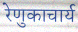
रेणुकाचार्य